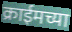
क्राईमच्या